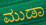
ಮುಡಾ